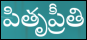
పితృప్రీతి